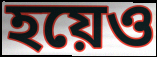
হয়েও